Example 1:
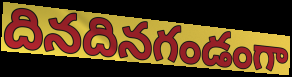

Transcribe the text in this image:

దినదినగండంగా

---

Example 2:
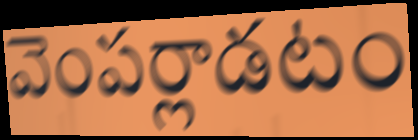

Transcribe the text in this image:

వెంపర్లాడటం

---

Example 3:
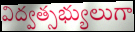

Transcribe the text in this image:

విద్వత్సభ్యులుగా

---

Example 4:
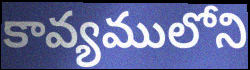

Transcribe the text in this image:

కావ్యములోని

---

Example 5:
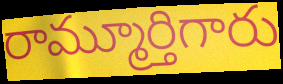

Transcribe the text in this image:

రామ్మూర్తిగారు